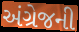
અંગ્રેજની